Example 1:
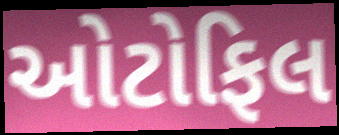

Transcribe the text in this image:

ઓટોફિલ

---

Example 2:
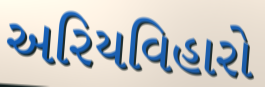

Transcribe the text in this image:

અરિયવિહારો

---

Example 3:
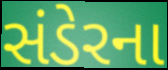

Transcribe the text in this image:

સંડેરના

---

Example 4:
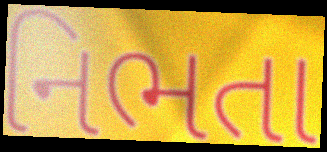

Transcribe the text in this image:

નિભતા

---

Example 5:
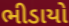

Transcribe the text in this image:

ભીડાયો